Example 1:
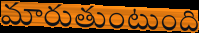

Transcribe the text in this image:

మారుతుంటుంది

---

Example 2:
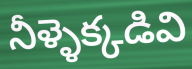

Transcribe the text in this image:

నీళ్ళెక్కడివి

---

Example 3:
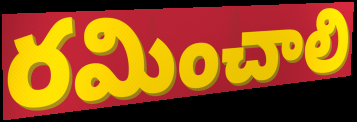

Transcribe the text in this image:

రమించాలి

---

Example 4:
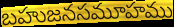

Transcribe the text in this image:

బహుజనసమూహము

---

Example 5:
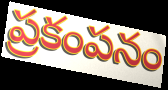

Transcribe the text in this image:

ప్రకంపనం